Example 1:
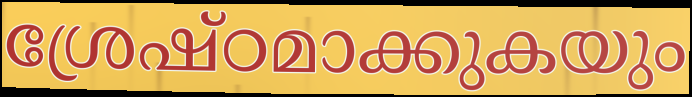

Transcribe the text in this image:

ശ്രേഷ്ഠമാക്കുകയും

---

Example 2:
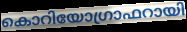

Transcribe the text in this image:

കൊറിയോഗ്രാഫറായി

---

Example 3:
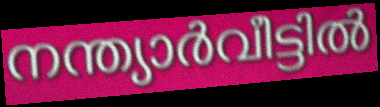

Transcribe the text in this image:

നന്ത്യാർവീട്ടിൽ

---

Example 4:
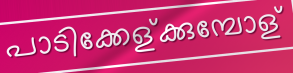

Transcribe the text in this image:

പാടിക്കേള്ക്കുമ്പോള്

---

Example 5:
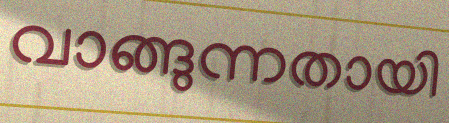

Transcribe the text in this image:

വാങ്ങുന്നതായി